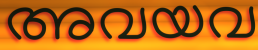
അവയവ